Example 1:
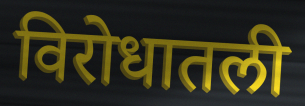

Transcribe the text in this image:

विरोधातली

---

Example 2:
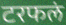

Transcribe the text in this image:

टरफलं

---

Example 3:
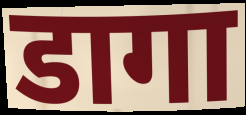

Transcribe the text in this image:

डागा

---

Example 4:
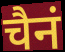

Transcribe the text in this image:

चैनं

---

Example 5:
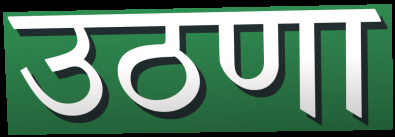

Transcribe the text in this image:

उठणा